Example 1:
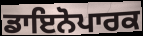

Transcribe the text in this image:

ਡਾਇਨੋਪਾਰਕ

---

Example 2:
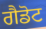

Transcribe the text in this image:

ਗੈਡੋਟ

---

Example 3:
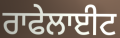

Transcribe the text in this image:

ਰਾਫੇਲਾਈਟ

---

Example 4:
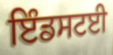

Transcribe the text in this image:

ਇੰਡਸਟਈ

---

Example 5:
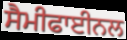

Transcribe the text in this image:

ਸੈਮੀਫਾਈਨਲ